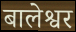
बालेश्वर